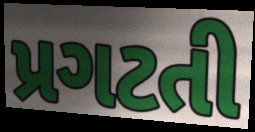
પ્રગટતી